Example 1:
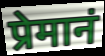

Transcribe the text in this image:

प्रेमानं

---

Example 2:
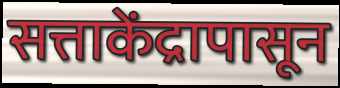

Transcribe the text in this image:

सत्ताकेंद्रापासून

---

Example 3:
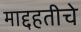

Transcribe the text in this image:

माद्दहतीचे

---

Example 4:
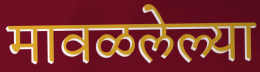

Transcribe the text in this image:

मावळलेल्या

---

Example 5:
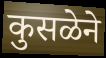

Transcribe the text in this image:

कुसळेने